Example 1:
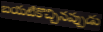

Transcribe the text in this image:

బయటికొచ్చినప్పుడు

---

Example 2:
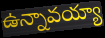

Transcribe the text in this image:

ఉన్నావయ్యా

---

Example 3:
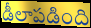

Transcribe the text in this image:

డీలాపడింది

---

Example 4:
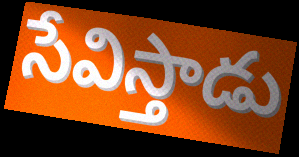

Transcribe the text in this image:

సేవిస్తాడు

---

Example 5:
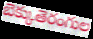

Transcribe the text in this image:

బెక్కుతెరంగుల